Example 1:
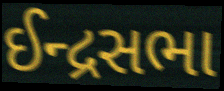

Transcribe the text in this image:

ઈન્દ્રસભા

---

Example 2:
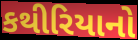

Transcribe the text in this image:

કથીરિયાનો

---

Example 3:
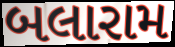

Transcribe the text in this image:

બલારામ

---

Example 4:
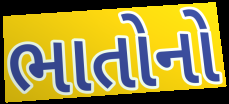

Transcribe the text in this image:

ભાતોનો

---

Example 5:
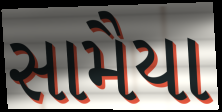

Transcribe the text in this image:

સામૈયા